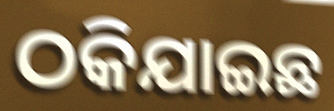
ଠକିଯାଇଛ